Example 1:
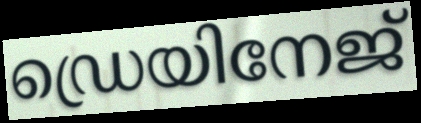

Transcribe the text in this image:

ഡ്രെയിനേജ്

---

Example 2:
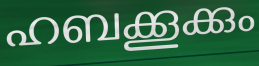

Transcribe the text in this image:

ഹബക്കൂക്കും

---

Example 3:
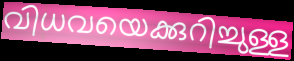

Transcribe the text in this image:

വിധവയെക്കുറിച്ചുള്ള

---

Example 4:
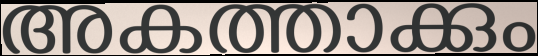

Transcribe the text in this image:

അകത്താക്കും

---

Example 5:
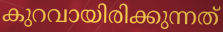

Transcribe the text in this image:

കുറവായിരിക്കുന്നത്